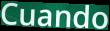
Cuando